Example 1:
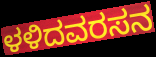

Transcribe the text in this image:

ಳಳಿದವರಸನ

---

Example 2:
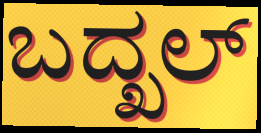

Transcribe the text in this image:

ಬದ್ಖಲ್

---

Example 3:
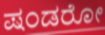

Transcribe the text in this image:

ಷಂಡರೋ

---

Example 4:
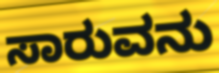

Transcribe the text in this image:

ಸಾರುವನು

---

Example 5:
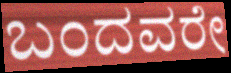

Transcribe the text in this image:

ಬಂದವರೇ